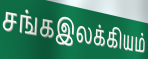
சங்கஇலக்கியம்